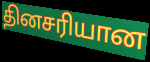
தினசரியான